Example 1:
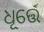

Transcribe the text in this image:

ଧୂର୍ତ୍ତେ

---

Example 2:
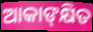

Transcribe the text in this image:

ଆକାଙ୍‍କ୍ଷିତ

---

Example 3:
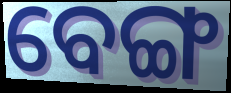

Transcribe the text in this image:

ବେଙ୍ଗ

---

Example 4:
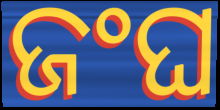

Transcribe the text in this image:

ଜଂଘ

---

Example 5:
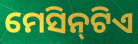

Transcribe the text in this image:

ମେସିନ୍‌ଟିଏ